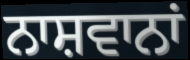
ਨਾਸ਼ਵਾਨਾਂ